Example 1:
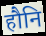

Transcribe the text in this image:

हौनि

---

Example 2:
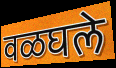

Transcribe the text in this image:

वळघले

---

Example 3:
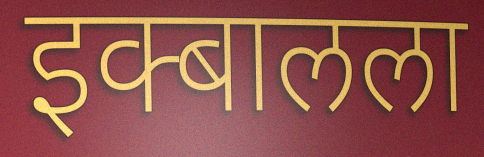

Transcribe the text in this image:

इक्बालला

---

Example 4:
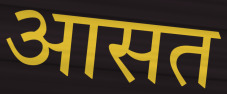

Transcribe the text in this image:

आसत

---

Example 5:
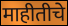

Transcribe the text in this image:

माहीतीचे